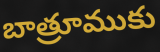
బాత్రూముకు